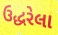
ઉદ્ધરેલા